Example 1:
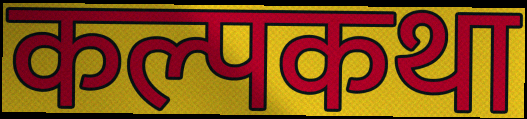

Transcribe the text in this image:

कल्पकथा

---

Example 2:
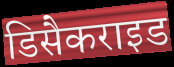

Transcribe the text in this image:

डिसैकराइड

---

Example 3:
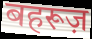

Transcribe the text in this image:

बहरूज़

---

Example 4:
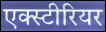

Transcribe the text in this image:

एक्स्टीरियर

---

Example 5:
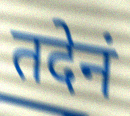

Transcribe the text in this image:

तदेनं